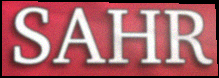
SAHR